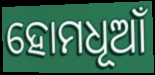
ହୋମଧୂଆଁ